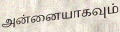
அன்னையாகவும்